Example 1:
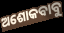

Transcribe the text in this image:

ଅଶୋକବାବୁ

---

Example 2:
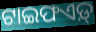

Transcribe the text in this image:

ଟାଇଫଏଡ଼୍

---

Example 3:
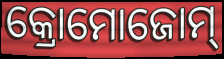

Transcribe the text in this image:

କ୍ରୋମୋଜୋମ୍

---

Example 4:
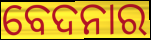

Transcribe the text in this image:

ବେଦନାର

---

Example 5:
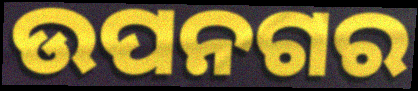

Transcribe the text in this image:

ଉପନଗର